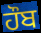
ਹੌਬ